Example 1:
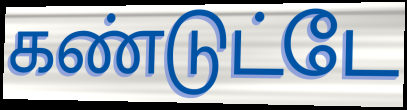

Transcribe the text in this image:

கண்டுட்டே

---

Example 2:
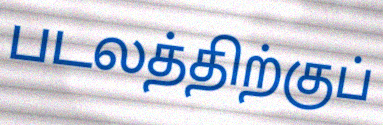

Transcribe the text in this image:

படலத்திற்குப்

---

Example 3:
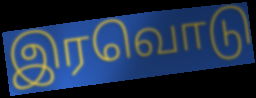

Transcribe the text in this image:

இரவொடு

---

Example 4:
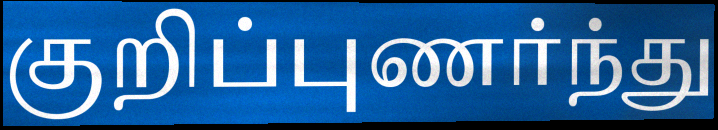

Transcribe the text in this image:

குறிப்புணர்ந்து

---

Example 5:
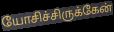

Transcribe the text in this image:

யோசிச்சிருக்கேன்